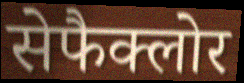
सेफैक्लोर